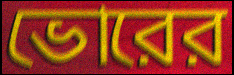
ভোরের